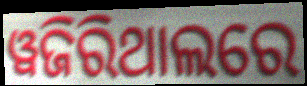
ୱଜିରିଥାଲରେ